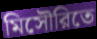
মিসৌরিতে